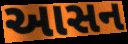
આસન